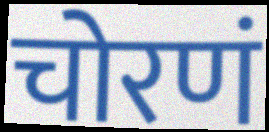
चोरणं